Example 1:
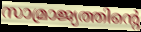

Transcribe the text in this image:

സാമ്രാജ്യത്തിന്റെ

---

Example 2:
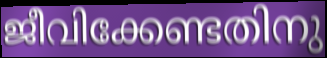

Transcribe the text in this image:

ജീവിക്കേണ്ടതിനു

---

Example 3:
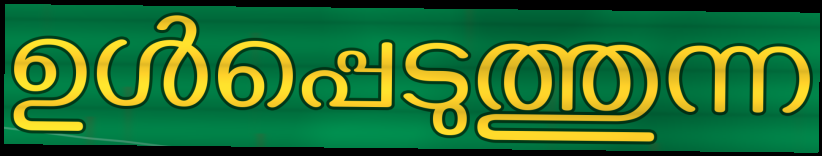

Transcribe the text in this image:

ഉൾപ്പെടുത്തുന്ന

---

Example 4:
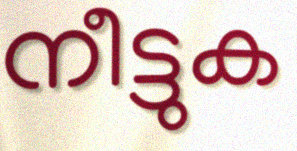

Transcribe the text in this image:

നീട്ടുക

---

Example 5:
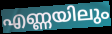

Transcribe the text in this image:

എണ്ണയിലും